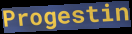
Progestin